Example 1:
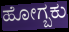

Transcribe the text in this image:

ಹೋಗ್ಬಕು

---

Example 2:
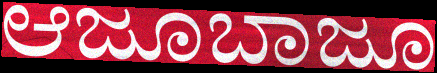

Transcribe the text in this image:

ಆಜೂಬಾಜೂ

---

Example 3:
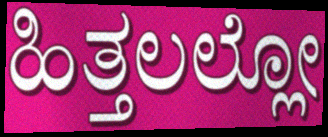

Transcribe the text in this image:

ಹಿತ್ತಲಲ್ಲೋ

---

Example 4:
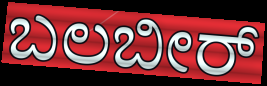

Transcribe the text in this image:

ಬಲಬೀರ್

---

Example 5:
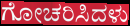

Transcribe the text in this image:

ಗೋಚರಿಸಿದಳು